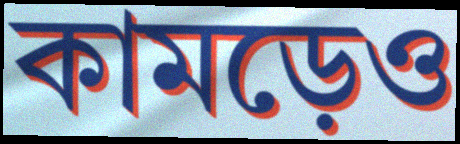
কামড়েও